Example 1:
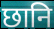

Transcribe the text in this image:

छानि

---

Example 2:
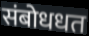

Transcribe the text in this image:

संबोधधत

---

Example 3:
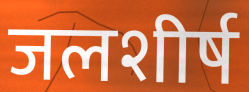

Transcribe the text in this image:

जलशीर्ष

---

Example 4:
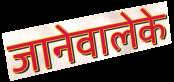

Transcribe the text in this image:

जानेवालेके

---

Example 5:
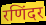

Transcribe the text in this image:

रणिंदर